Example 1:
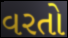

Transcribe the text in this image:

વરતો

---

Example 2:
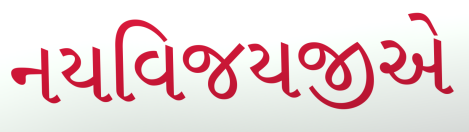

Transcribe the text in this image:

નયવિજયજીએ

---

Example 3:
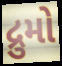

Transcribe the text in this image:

દ્રુમો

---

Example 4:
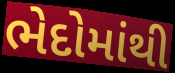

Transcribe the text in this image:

ભેદોમાંથી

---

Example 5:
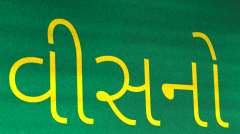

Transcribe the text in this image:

વીસનો